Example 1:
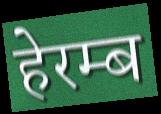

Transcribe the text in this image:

हेरम्ब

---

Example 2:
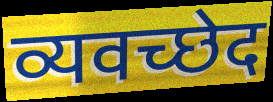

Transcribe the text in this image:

व्यवच्छेद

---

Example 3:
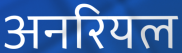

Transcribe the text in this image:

अनरियल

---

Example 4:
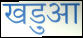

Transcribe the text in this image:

खड़ुआ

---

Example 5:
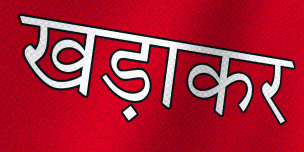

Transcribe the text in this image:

खड़ाकर